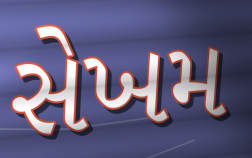
સેખમ